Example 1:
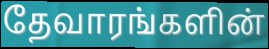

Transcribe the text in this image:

தேவாரங்களின்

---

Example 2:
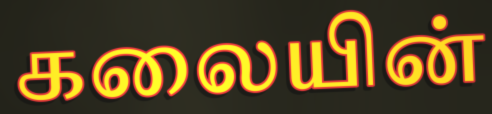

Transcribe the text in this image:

கலையின்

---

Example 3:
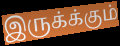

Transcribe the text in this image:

இருக்க்கும்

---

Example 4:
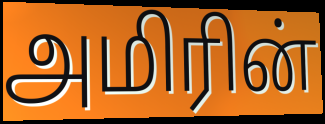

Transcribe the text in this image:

அமிரின்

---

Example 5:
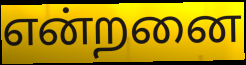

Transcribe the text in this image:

என்றனை